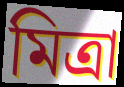
মিত্রা